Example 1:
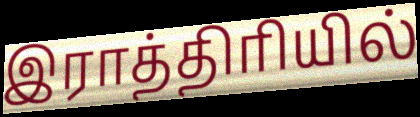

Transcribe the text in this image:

இராத்திரியில்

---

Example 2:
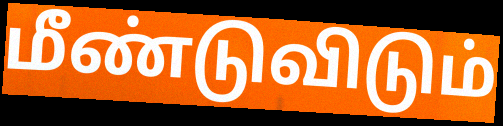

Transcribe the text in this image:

மீண்டுவிடும்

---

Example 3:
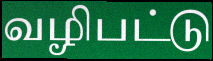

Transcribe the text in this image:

வழிபட்டு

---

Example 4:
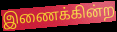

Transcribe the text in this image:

இணைக்கின்ற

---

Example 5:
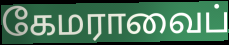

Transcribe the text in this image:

கேமராவைப்